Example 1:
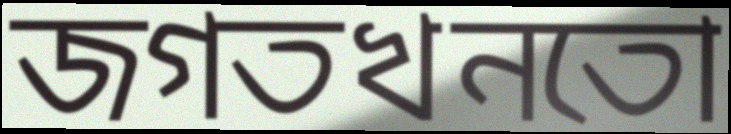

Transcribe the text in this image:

জগতখনতো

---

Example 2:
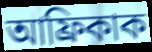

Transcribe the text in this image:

আফ্ৰিকাক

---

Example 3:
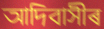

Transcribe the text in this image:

আদিবাসীৰ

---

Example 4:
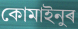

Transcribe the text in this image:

কোমাইনুৰ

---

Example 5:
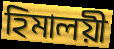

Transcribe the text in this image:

হিমালয়ী